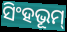
ସିଂହଭୂମ୍